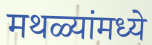
मथळ्यांमध्ये